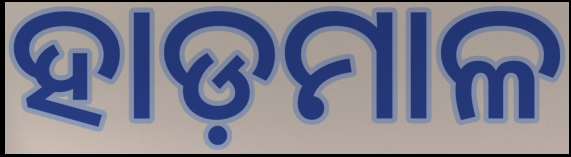
ହାଡ଼ମାଳ